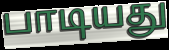
பாடியது